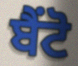
ਬੈਂਟੋ